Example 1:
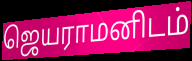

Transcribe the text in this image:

ஜெயராமனிடம்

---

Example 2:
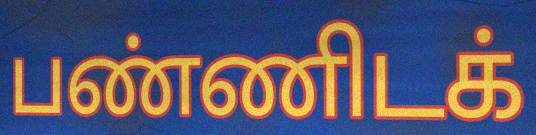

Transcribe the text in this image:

பண்ணிடக்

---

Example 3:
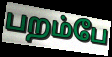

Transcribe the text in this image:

பறம்பே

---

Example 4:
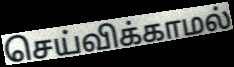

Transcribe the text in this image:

செய்விக்காமல்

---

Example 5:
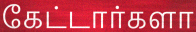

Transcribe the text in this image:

கேட்டார்களா